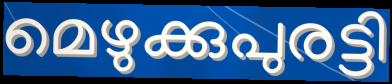
മെഴുക്കുപുരട്ടി